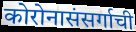
कोरोनासंसर्गाची